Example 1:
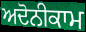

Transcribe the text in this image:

ਅਦੋਨੀਕਾਮ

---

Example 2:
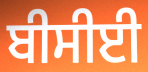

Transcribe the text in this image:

ਬੀਸੀਈ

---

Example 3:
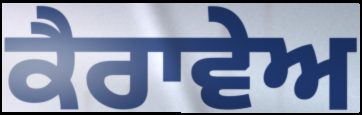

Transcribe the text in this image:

ਕੈਰਾਵੇਅ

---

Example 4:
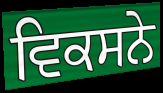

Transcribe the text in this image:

ਵਿਕਸਨੇ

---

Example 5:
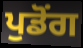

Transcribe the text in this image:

ਪੁਡੋਂਗ